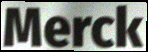
Merck